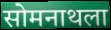
सोमनाथला